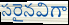
సరైనవిగా